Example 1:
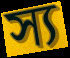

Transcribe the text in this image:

স্য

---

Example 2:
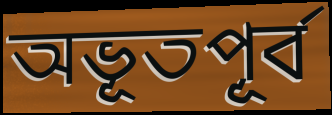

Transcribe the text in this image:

অভূতপূৰ্ব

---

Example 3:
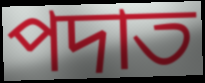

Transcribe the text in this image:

পদাত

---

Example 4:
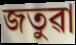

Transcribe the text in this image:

জতুৱা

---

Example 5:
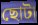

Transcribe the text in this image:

ছোটা